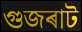
গুজৰাট